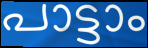
പാട്ടാം